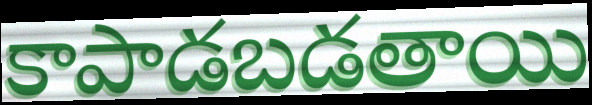
కాపాడబడతాయి